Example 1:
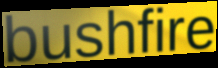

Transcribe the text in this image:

bushfire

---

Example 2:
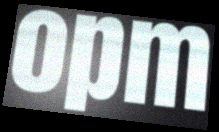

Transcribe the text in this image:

opm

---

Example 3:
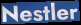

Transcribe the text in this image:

Nestler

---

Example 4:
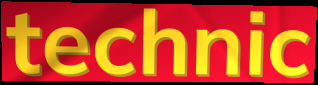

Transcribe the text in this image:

technic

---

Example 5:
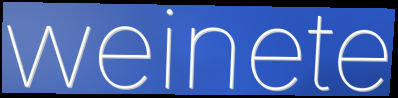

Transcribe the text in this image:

weinete